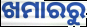
ଖମାରରୁ